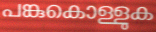
പങ്കുകൊള്ളുക